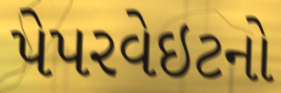
પેપરવેઇટનો